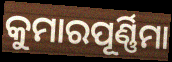
କୁମାରପୂର୍ଣ୍ଣିମା